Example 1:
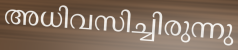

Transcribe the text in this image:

അധിവസിച്ചിരുന്നു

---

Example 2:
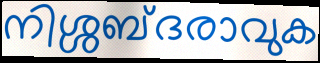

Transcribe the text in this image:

നിശ്ശബ്ദരാവുക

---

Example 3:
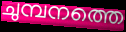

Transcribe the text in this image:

ചുമ്പനത്തെ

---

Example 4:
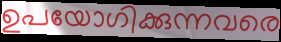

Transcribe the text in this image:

ഉപയോഗിക്കുന്നവരെ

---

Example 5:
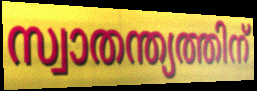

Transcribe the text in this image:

സ്വാതന്ത്യത്തിന്